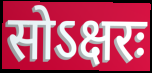
सोऽक्षरः